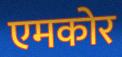
एमकोर